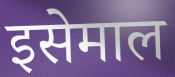
इसेमाल